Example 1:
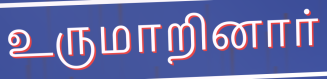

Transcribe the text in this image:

உருமாறினார்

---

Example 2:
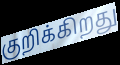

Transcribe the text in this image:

குறிக்கிறது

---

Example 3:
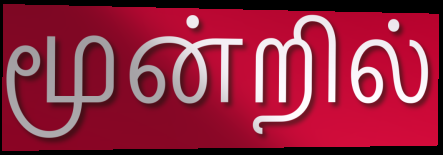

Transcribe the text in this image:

மூன்றில்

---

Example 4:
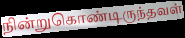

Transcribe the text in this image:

நின்றுகொண்டிருந்தவள்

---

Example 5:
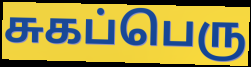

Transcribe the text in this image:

சுகப்பெரு